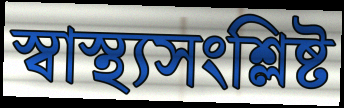
স্বাস্থ্যসংশ্লিষ্ট